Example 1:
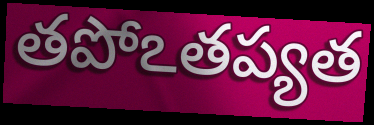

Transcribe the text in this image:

తపోఽతప్యత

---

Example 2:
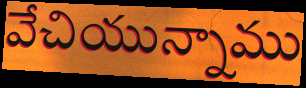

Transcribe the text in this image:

వేచియున్నాము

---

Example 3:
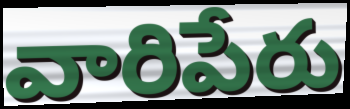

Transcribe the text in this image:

వారిపేరు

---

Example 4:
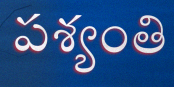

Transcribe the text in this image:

పశ్యంతి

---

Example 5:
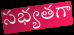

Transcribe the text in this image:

సభ్యతగా